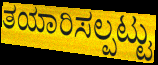
ತಯಾರಿಸಲ್ಪಟ್ಟು